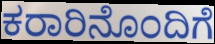
ಕರಾರಿನೊಂದಿಗೆ